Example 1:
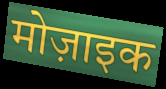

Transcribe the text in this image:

मोज़ाइक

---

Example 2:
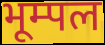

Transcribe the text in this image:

भूम्पल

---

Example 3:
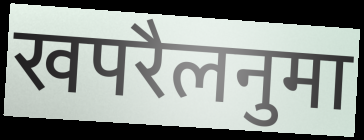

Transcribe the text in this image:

खपरैलनुमा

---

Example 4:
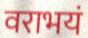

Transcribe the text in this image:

वराभयं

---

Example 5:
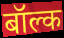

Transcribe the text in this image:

बॉल्क